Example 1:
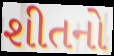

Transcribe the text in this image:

શીતનો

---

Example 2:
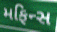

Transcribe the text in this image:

મફિન્સ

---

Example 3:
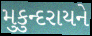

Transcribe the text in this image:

મુકુન્દરાયને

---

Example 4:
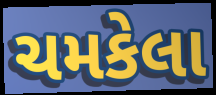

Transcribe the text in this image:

ચમકેલા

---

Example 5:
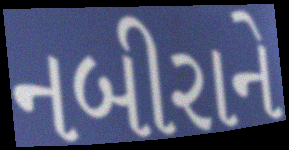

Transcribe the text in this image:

નબીરાને